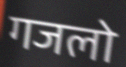
गजलो